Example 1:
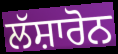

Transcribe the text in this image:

ਲੱਸ਼ਾਰੋਨ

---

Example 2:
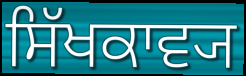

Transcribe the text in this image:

ਸਿੱਖਕਾਵ੍ਯ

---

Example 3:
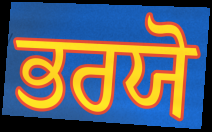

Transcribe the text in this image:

ਭਰਯੋ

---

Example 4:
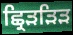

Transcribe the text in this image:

ਛ੍ਰਿੜੜਿੜ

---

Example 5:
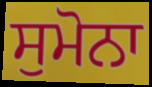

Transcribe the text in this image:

ਸੁਮੋਨਾ